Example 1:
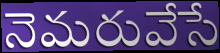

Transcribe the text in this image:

నెమరువేసే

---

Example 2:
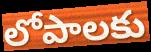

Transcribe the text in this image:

లోపాలకు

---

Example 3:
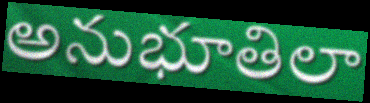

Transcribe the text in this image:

అనుభూతిలా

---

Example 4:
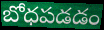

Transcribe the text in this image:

బోధపడడం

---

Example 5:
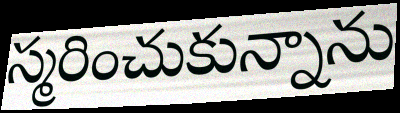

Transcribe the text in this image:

స్మరించుకున్నాను